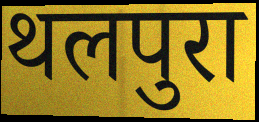
थलपुरा